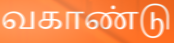
வகாண்டு